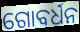
ଗୋବର୍ଧନ